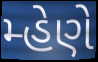
મ્હેણે